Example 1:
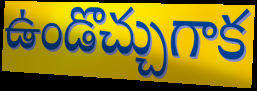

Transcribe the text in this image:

ఉండొచ్చుగాక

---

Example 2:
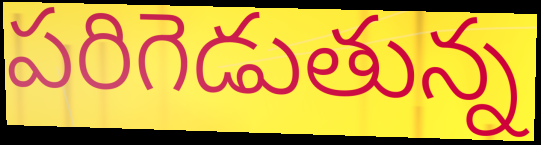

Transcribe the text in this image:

పరిగెడుతున్న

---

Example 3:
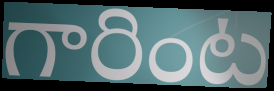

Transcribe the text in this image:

గారింట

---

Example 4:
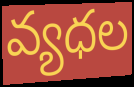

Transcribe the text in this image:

వ్యధల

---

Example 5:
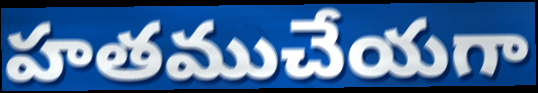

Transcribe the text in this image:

హతముచేయగా